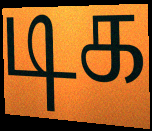
டிக